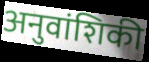
अनुवांशिकी